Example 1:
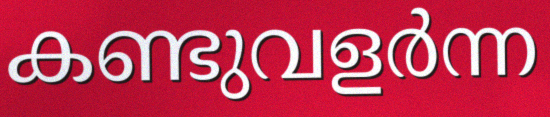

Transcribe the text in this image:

കണ്ടുവളർന്ന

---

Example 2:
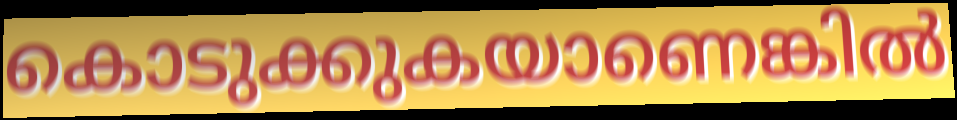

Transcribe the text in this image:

കൊടുക്കുകയാണെങ്കിൽ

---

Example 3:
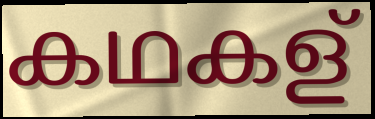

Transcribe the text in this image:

കഥകള്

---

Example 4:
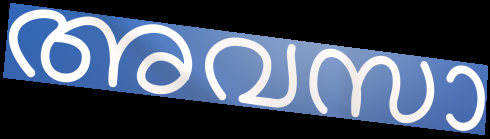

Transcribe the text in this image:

അവസാ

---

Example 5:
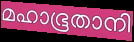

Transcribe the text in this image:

മഹാഭൂതാനി